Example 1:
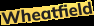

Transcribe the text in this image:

Wheatfield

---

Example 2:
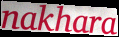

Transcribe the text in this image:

nakhara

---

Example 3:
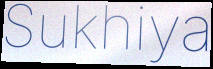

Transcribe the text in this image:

Sukhiya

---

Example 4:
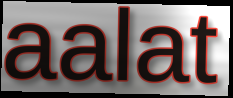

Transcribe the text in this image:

aalat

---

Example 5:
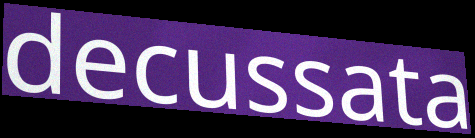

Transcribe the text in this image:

decussata